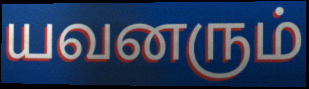
யவனரும்